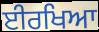
ਈਰਖਿਆ